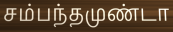
சம்பந்தமுண்டா